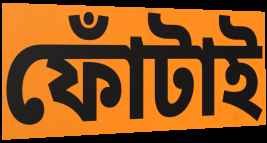
ফোঁটাই